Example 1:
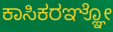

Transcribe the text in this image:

ಕಾಸಿಕರಞ್ಞೋ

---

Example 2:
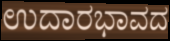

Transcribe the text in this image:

ಉದಾರಭಾವದ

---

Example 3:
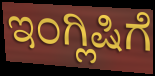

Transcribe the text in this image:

ಇಂಗ್ಲಿಷಿಗೆ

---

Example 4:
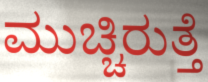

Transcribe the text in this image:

ಮುಚ್ಚಿರುತ್ತೆ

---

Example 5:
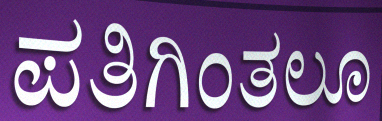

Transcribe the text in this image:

ಪತಿಗಿಂತಲೂ